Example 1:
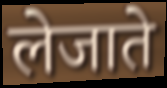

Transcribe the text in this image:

लेजाते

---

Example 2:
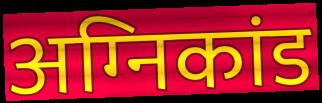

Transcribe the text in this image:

अग्‍निकांड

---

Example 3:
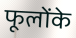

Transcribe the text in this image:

फूलोंके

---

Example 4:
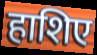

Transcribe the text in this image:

हाशिए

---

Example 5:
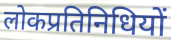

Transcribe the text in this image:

लोकप्रतिनिधियों